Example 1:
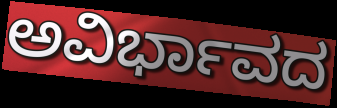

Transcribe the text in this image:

ಅವಿರ್ಭಾವದ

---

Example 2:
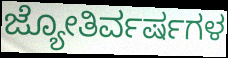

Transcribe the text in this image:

ಜ್ಯೋತಿರ್ವರ್ಷಗಳ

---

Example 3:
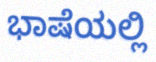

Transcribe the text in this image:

ಭಾಷೆಯಲ್ಲಿ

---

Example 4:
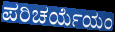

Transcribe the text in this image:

ಪರಿಚರ್ಯೆಯಂ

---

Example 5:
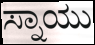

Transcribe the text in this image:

ಸ್ನಾಯು